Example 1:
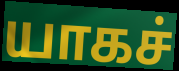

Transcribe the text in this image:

யாகச்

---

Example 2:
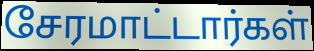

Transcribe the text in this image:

சேரமாட்டார்கள்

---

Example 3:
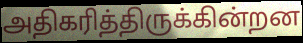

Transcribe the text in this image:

அதிகரித்திருக்கின்றன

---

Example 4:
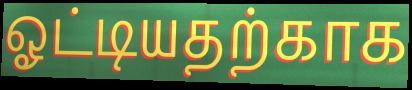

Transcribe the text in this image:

ஓட்டியதற்காக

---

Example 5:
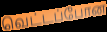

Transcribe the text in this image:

வெட்டப்போன